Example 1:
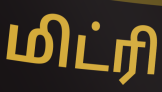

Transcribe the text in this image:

மிட்ரி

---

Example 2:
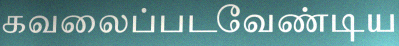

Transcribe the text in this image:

கவலைப்படவேண்டிய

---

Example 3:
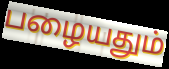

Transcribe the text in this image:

பழையதும்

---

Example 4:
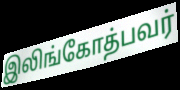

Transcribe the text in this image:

இலிங்கோத்பவர்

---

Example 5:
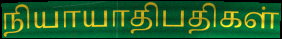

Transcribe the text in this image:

நியாயாதிபதிகள்